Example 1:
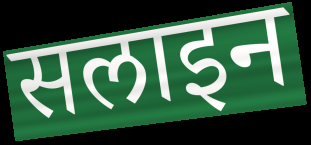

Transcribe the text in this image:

सलाइन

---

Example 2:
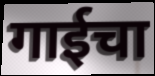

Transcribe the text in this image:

गाईचा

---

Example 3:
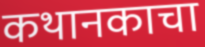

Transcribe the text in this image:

कथानकाचा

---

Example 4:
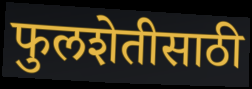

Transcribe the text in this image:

फुलशेतीसाठी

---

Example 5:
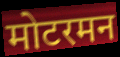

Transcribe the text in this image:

मोटरमन